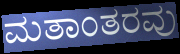
ಮತಾಂತರವು